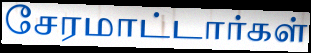
சேரமாட்டார்கள்